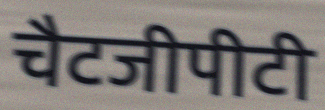
चैटजीपीटी